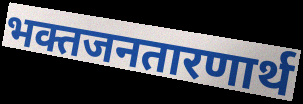
भक्तजनतारणार्थ